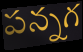
పన్నగ